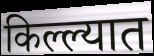
किल्ल्यात